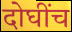
दोघींच